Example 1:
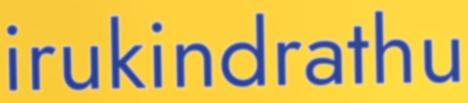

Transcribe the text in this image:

irukindrathu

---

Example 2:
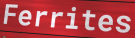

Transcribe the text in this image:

Ferrites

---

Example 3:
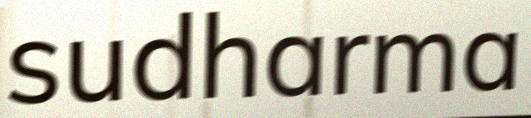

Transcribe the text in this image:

sudharma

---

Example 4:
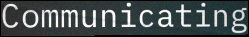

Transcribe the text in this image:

Communicating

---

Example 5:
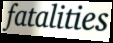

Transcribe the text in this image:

fatalities